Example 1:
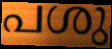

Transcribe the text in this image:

പശു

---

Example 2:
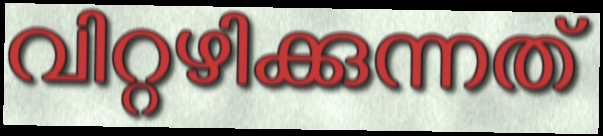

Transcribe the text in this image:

വിറ്റഴിക്കുന്നത്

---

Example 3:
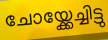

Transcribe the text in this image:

ചോയ്ക്കേച്ചിട്ടു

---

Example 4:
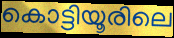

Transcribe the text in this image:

കൊട്ടിയൂരിലെ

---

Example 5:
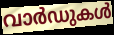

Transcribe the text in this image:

വാർഡുകൾ